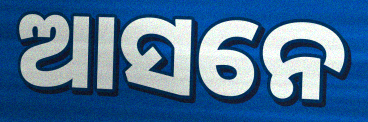
ଆସନେ